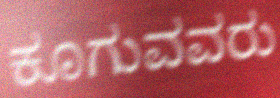
ಕೂಗುವವರು